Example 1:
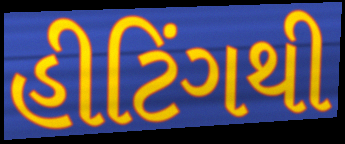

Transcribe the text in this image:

હીટિંગથી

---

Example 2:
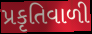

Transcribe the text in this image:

પ્રકૃતિવાળી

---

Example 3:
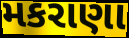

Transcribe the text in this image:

મકરાણા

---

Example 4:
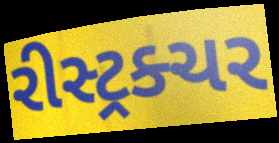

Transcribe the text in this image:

રીસ્ટ્રક્ચર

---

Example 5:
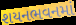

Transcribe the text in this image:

શયનભવનમાં